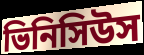
ভিনিসিউস